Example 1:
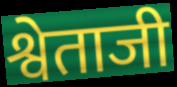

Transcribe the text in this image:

श्वेताजी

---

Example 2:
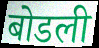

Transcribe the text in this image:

बोडली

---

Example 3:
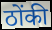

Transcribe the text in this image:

ठोंकी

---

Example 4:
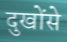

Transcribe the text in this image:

दुखोंसे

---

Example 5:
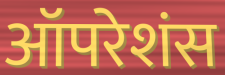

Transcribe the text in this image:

ऑपरेशंस